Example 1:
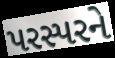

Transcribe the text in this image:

પરસ્પરને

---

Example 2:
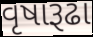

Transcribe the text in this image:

વૃષારૂઢા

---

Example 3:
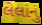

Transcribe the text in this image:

લેલાંનું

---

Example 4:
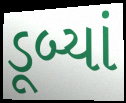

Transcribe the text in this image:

ડૂબ્યાં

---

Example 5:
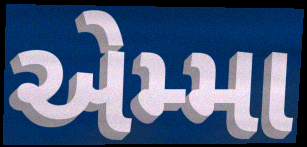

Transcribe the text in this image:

એમ્મા